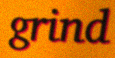
grind